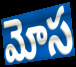
మోస